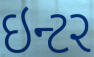
ઇન્ટર